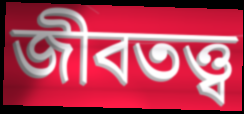
জীবতত্ত্ব